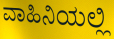
ವಾಹಿನಿಯಲ್ಲಿ